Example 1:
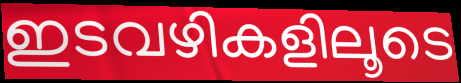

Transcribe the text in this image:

ഇടവഴികളിലൂടെ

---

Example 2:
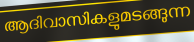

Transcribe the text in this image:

ആദിവാസികളുമടങ്ങുന്ന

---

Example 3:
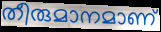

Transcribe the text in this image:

തീരുമാനമാണ്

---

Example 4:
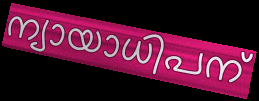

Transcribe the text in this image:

ന്യായാധിപന്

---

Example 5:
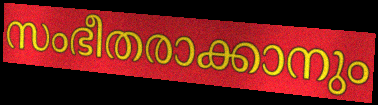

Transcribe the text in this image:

സംഭീതരാക്കാനും